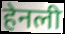
हेनली